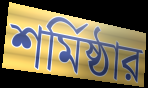
শর্মিষ্ঠার